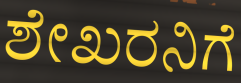
ಶೇಖರನಿಗೆ